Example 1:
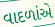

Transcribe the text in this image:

વાદળાંએ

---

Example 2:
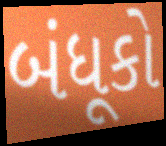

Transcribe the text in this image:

બંધૂકો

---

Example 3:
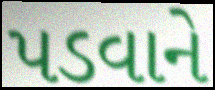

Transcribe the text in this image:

પડવાને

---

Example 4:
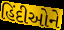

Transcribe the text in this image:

હિંદીઓને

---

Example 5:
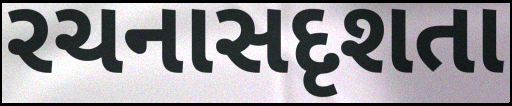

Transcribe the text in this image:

રચનાસદૃશતા